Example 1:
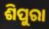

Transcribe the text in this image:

ଶିପୁରା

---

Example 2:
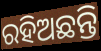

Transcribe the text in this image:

ରହିଅଛନ୍ତି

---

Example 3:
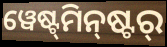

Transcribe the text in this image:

ୱେଷ୍ଟ୍‌ମିନ୍‌ଷ୍ଟର୍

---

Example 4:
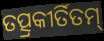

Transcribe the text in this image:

ତତ୍ପ୍ରକୀର୍ତିତମ୍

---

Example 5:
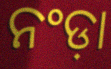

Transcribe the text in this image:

ନଂଡ଼ା